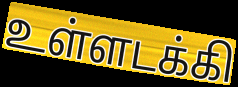
உள்ளடக்கி